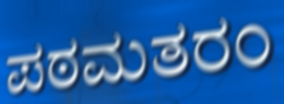
ಪಠಮತರಂ